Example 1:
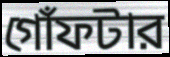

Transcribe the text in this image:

গোঁফটার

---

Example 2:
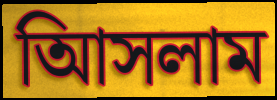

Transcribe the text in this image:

আিসলাম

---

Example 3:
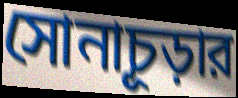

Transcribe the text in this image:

সোনাচূড়ার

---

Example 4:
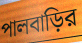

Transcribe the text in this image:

পালবাড়ির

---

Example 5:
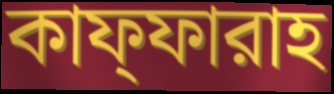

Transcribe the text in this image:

কাফ্ফারাহ